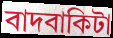
বাদবাকিটা